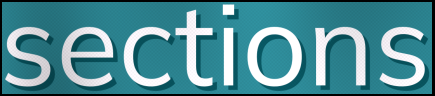
sections